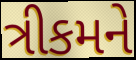
ત્રીકમને